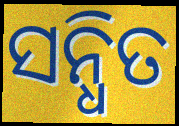
ସନ୍ଧିତ